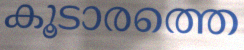
കൂടാരത്തെ